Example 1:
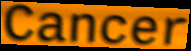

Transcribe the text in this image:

Cancer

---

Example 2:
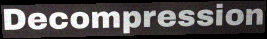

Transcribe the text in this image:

Decompression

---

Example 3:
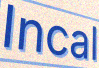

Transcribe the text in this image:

Incal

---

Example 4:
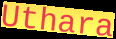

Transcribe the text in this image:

Uthara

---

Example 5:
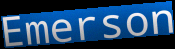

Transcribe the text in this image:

Emerson